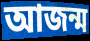
আজন্ম